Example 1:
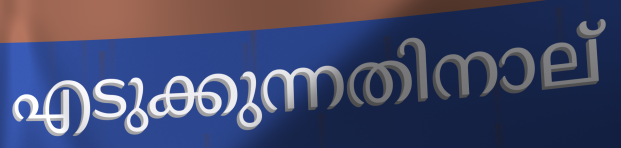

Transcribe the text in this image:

എടുക്കുന്നതിനാല്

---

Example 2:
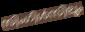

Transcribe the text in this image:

സിംഗിൾസിലും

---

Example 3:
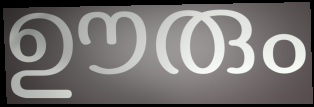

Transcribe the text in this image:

ഊരും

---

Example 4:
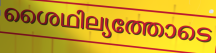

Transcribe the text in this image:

ശൈഥില്യത്തോടെ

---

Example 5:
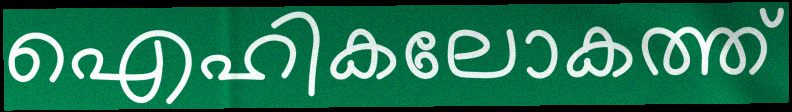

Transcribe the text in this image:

ഐഹികലോകത്ത്